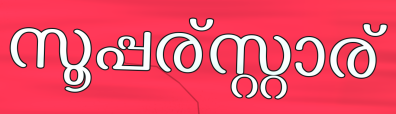
സൂപ്പര്സ്റ്റാര്